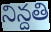
నిన్దతి